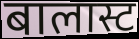
बालास्ट